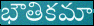
భౌతికమా